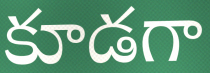
కూడగా